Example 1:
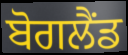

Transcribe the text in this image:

ਬੋਗਲੈਂਡ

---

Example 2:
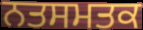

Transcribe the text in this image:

ਨਤਸਮਤਕ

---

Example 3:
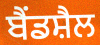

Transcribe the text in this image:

ਬੈਂਡਸ਼ੈਲ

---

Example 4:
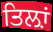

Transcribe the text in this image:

ਤਿਲ਼ਾਂ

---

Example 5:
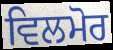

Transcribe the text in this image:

ਵਿਲਮੋਰ